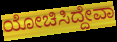
ಯೋಚಿಸಿದ್ದೇವಾ